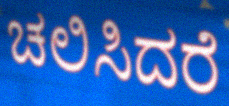
ಚಲಿಸಿದರೆ